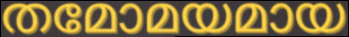
തമോമയമായ